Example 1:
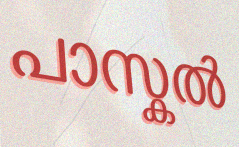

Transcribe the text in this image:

പാസ്കൽ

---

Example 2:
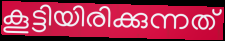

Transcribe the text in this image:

കൂട്ടിയിരിക്കുന്നത്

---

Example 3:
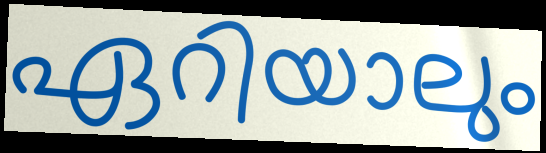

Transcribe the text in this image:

ഏറിയാലും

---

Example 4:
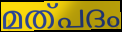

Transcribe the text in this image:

മത്പദം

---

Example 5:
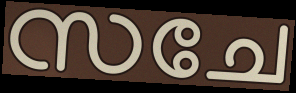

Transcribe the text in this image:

സചേ